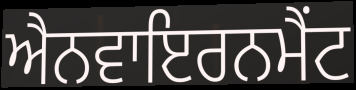
ਐਨਵਾਇਰਨਮੈਂਟ